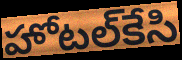
హోటల్‌కేసి